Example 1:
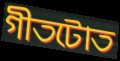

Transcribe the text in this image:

গীতটোত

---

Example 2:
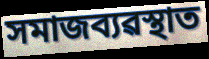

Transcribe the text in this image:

সমাজব্যৱস্থাত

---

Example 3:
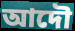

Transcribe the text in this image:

আদৌ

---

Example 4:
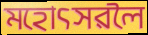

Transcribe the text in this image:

মহোৎসৱলৈ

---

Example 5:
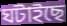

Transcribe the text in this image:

ঘটাইছে